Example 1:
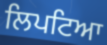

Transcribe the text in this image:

ਲਿਪਟਿਆ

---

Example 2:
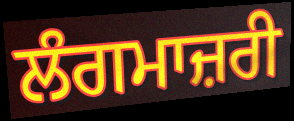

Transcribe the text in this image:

ਲੰਗਮਾਜ਼ਰੀ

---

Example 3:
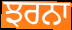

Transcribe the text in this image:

ਝਰਨਾ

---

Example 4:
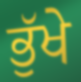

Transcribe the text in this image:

ਭੁੱਖੇ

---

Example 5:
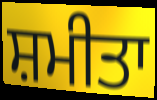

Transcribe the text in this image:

ਸ਼ਮੀਤਾ